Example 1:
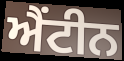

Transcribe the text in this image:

ਐਂਟੀਨ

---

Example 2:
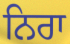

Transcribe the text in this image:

ਨਿਰਾ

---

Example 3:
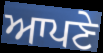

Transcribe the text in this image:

ਆਪਣੇ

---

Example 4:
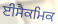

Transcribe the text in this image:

ਈਸੈਕਮਿਕ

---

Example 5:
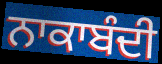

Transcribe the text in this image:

ਨਾਕਾਬੰਦੀ